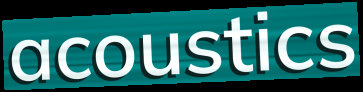
acoustics